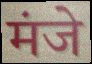
मंजे